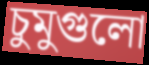
চুমুগুলো